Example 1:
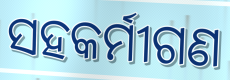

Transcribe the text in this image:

ସହକର୍ମୀଗଣ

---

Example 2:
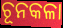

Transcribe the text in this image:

ଚୂନକଳା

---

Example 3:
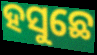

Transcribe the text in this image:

ହସୁଛେ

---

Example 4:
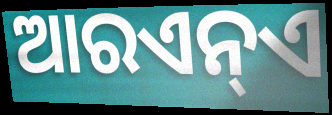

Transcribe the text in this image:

ଆରଏନ୍ଏ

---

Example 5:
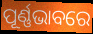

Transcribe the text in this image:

ପୂର୍ଣ୍ଣଭାବରେ